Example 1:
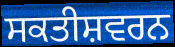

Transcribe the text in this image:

ਸਕਤੀਸ਼ਵਰਨ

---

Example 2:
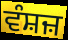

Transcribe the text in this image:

ਵੰਸ਼ਜ਼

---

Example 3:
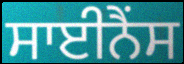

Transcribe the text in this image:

ਸਾਈਨੈਂਸ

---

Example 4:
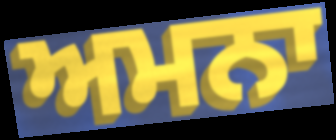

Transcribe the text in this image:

ਅਮਨਾ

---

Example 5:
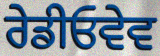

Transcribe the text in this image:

ਰੇਡੀਓਵੇਵ